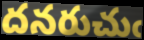
దనరుచుఁ